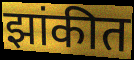
झांकीत